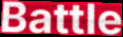
Battle